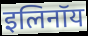
इलिनॉय